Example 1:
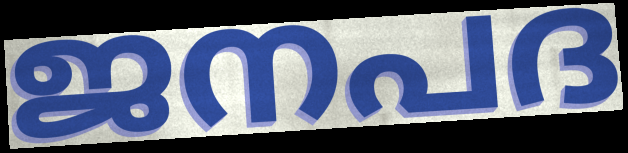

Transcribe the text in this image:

ജനപദ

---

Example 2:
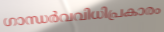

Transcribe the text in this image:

ഗാന്ധർവവിധിപ്രകാരം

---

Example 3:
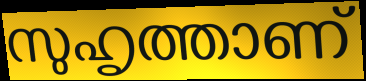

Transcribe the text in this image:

സുഹൃത്താണ്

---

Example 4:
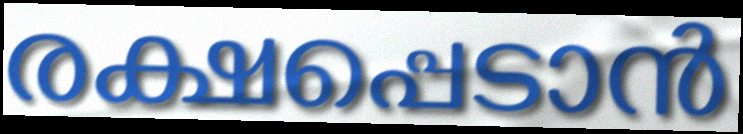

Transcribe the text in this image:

രക്ഷപ്പെടാൻ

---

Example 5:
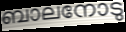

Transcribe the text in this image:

ബാലനോടു